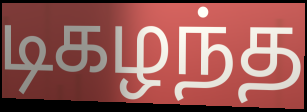
டிகழந்த